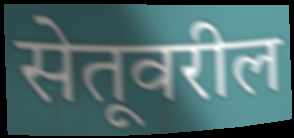
सेतूवरील